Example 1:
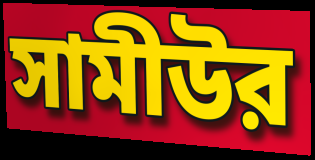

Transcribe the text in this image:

সামীউর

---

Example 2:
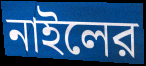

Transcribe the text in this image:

নাইলের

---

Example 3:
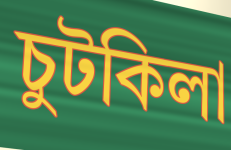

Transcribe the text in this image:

চুটকিলা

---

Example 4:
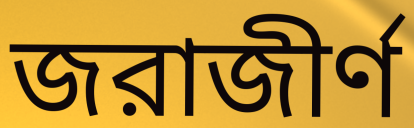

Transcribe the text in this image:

জরাজীর্ণ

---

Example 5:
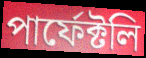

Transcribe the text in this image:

পার্ফেক্টলি